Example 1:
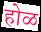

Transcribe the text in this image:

होळ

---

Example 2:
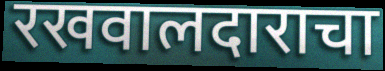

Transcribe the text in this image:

रखवालदाराचा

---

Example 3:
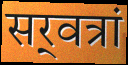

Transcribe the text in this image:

सर्वत्रां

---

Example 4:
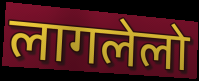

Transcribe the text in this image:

लागलेलो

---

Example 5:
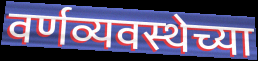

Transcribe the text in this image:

वर्णव्यवस्थेच्या